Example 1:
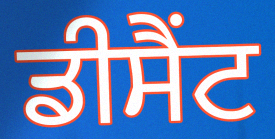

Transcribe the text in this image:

ਡੀਸੈਂਟ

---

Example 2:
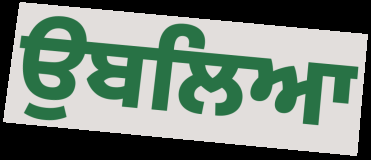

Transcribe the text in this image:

ਉਬਲਿਆ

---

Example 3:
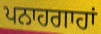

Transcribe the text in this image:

ਪਨਾਹਗਾਹਾਂ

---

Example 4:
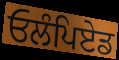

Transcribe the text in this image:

ਓਲੰਪਿਏਡ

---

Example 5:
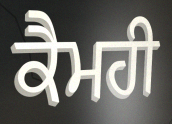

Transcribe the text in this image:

ਕੈਮਹੀ